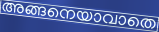
അങ്ങനെയാവാതെ